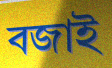
বজাই